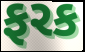
ફરક